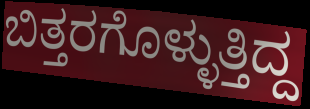
ಬಿತ್ತರಗೊಳ್ಳುತ್ತಿದ್ದ